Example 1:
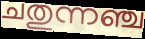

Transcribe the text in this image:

ചതുന്നഞ്ച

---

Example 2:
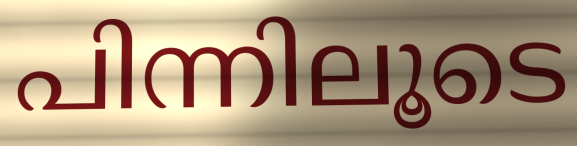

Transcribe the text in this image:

പിന്നിലൂടെ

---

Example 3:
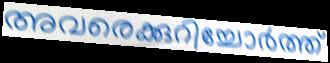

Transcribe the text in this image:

അവരെക്കുറിച്ചോർത്ത്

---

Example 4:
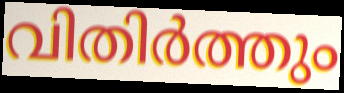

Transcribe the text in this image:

വിതിർത്തും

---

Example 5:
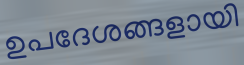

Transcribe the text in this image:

ഉപദേശങ്ങളായി